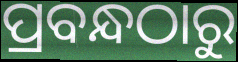
ପ୍ରବନ୍ଧଠାରୁ